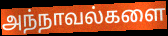
அந்நாவல்களை